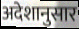
अदेशानुसार